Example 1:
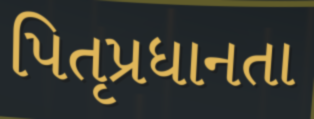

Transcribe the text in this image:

પિતૃપ્રધાનતા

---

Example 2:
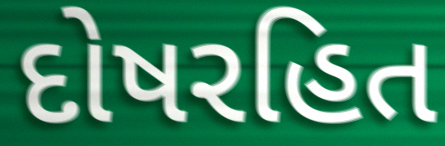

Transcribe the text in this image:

દોષરહિત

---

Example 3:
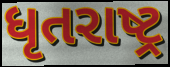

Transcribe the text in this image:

ધૃતરાષ્ટ્ર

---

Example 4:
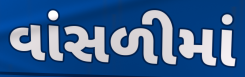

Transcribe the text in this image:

વાંસળીમાં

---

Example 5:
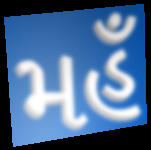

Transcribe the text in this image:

મહઁ